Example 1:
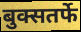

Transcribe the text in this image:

बुक्सतर्फे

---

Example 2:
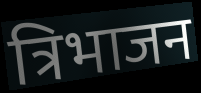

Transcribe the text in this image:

त्रिभाजन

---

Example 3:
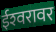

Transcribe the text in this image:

ईश्‍वरावर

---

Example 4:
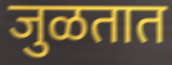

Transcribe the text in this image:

जुळतात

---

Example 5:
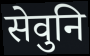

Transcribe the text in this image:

सेवुनि